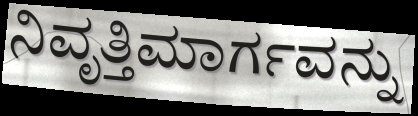
ನಿವೃತ್ತಿಮಾರ್ಗವನ್ನು